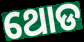
ଥୋଡ